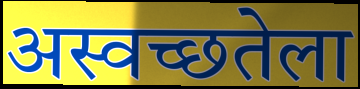
अस्वच्छतेला